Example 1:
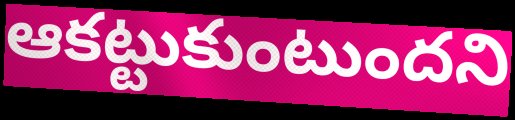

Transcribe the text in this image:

ఆకట్టుకుంటుందని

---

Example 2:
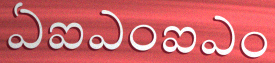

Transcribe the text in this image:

ఏఐఎంఐఎం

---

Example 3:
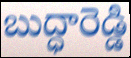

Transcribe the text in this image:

బుద్ధారెడ్డి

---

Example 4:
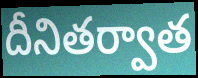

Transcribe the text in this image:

దీనితర్వాత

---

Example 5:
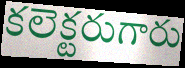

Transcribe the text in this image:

కలెక్టరుగారు